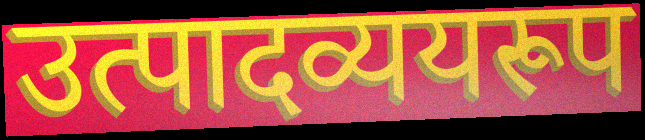
उत्पादव्ययरूप